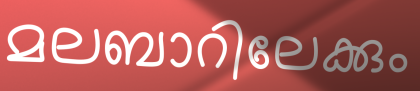
മലബാറിലേക്കും